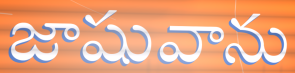
జాషువాను